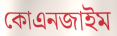
কোএনজাইম